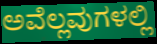
ಅವೆಲ್ಲವುಗಳಲ್ಲಿ